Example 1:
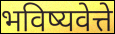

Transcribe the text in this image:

भविष्यवेत्ते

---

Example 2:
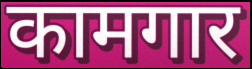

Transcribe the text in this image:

कामगार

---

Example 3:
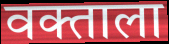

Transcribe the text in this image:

वक्ताला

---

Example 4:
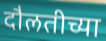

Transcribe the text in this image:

दौलतीच्या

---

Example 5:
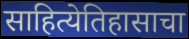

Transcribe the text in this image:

साहित्येतिहासाचा